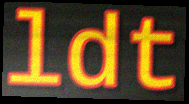
ldt